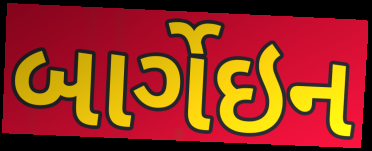
બાર્ગેઇન